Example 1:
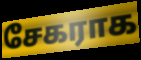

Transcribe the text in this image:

சேகராக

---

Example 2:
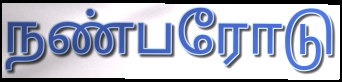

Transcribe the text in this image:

நண்பரோடு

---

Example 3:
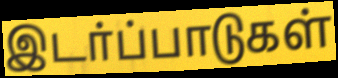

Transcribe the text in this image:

இடர்ப்பாடுகள்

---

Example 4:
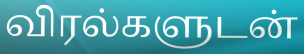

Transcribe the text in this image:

விரல்களுடன்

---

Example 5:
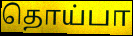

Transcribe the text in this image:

தொய்பா